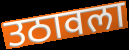
उठावला